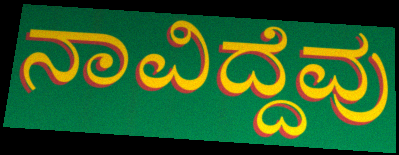
ನಾವಿದ್ದೆವು